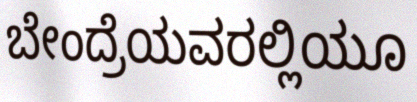
ಬೇಂದ್ರೆಯವರಲ್ಲಿಯೂ